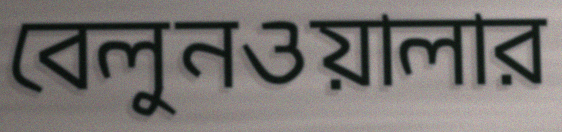
বেলুনওয়ালার